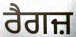
ਰੈਗਜ਼